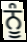
ਨੂੰ